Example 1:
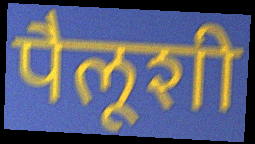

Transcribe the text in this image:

पैलूशी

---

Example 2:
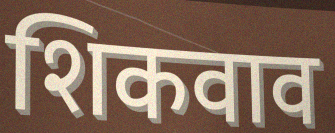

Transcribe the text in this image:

शिकवाव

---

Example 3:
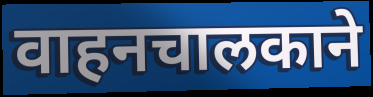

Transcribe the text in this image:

वाहनचालकाने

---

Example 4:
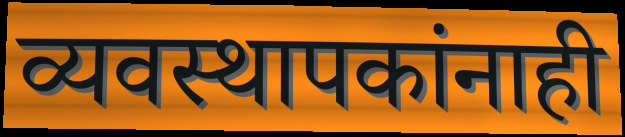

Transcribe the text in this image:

व्यवस्थापकांनाही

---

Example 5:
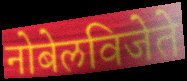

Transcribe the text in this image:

नोबेलविजेते